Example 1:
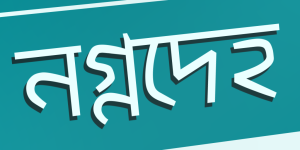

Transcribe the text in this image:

নগ্নদেহ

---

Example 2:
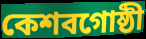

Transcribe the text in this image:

কেশবগোষ্ঠী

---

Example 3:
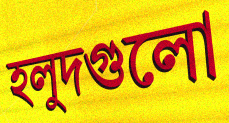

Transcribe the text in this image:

হলুদগুলো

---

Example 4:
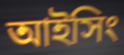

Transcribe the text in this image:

আইসিং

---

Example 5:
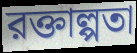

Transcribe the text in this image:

রক্তাল্পতা